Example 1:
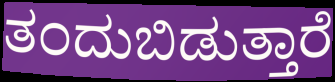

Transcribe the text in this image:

ತಂದುಬಿಡುತ್ತಾರೆ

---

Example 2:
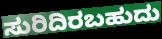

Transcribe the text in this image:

ಸುರಿದಿರಬಹುದು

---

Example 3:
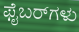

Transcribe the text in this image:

ಫೈಬರ್‌ಗಳು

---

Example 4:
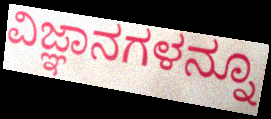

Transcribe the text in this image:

ವಿಜ್ಞಾನಗಳನ್ನೂ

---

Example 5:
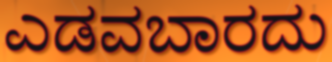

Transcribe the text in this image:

ಎಡವಬಾರದು